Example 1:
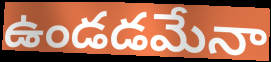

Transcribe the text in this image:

ఉండడమేనా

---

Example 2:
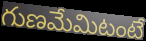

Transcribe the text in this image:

గుణమేమిటంటే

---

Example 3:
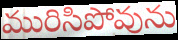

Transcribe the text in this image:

మురిసిపోవును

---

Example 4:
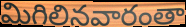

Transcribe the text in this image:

మిగిలినవారంతా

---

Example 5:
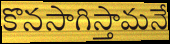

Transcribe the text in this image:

కొనసాగిస్తామనే